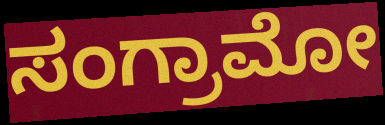
ಸಂಗ್ರಾಮೋ